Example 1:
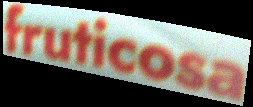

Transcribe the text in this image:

fruticosa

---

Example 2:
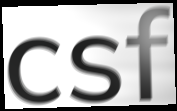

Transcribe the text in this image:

csf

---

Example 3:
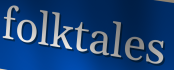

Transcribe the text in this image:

folktales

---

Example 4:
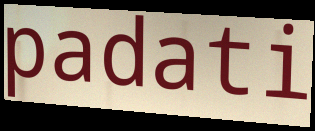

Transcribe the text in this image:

padati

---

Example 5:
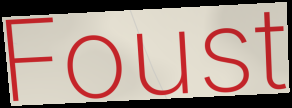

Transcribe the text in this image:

Foust